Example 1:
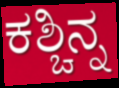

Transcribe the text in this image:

ಕಶ್ಚಿನ್ನ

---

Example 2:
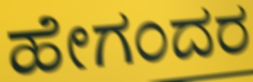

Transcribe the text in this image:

ಹೇಗಂದರ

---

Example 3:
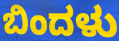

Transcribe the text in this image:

ಬಿಂದಳು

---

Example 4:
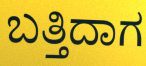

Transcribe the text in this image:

ಬತ್ತಿದಾಗ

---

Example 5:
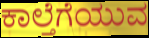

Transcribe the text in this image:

ಕಾಲ್ತೆಗೆಯುವ